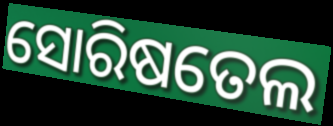
ସୋରିଷତେଲ